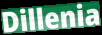
Dillenia